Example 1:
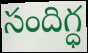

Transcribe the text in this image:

సందిగ్ధ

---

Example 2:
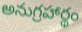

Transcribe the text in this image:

అనుగ్రహార్థం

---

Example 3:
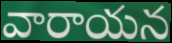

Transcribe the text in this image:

వారాయన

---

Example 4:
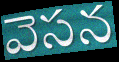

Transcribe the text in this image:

వెసన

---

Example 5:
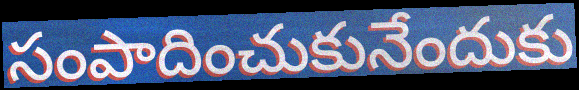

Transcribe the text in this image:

సంపాదించుకునేందుకు